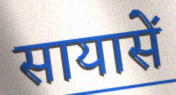
सायासें